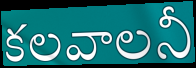
కలవాలనీ